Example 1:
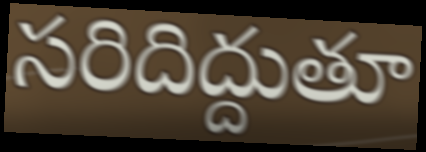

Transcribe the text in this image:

సరిదిద్దుతూ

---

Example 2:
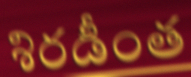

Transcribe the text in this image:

శిరడీంత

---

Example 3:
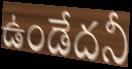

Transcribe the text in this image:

ఉండేదనీ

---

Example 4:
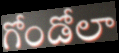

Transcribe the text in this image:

గోండోలా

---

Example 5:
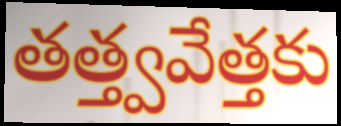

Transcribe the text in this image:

తత్త్వవేత్తకు